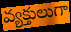
వ్యక్తులుగా